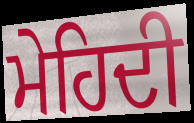
ਮੇਹਿਦੀ